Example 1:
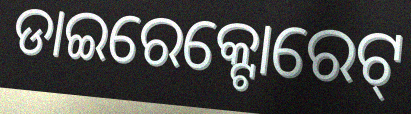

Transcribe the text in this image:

ଡାଇରେକ୍ଟୋରେଟ୍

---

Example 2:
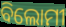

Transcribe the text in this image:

ବିଲୋମୀ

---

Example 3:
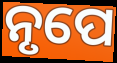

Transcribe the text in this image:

ନୃପେ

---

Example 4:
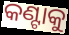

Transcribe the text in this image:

କଣ୍ଟାକୁ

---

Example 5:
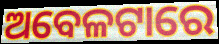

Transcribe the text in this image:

ଅବେଳଟାରେ